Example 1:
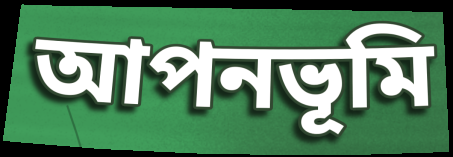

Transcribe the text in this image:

আপনভূমি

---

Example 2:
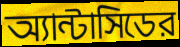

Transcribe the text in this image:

অ্যান্টাসিডের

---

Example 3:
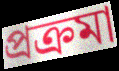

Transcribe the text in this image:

প্রক্রমা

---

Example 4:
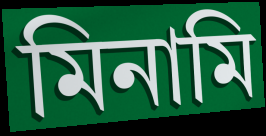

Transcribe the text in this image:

মিনামি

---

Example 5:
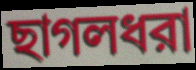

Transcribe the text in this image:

ছাগলধরা